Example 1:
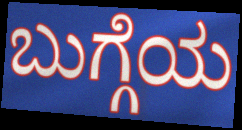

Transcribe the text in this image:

ಬುಗ್ಗೆಯ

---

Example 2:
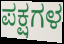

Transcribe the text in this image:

ಪಕ್ಷಗಳ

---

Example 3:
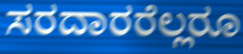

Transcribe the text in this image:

ಸರದಾರರೆಲ್ಲರೂ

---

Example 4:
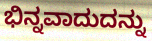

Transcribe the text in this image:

ಭಿನ್ನವಾದುದನ್ನು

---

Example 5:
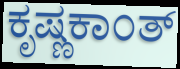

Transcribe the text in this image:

ಕೃಷ್ಣಕಾಂತ್